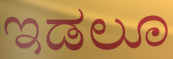
ಇಡಲೂ